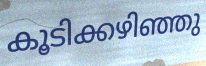
കൂടിക്കഴിഞ്ഞു